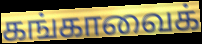
கங்காவைக்